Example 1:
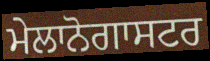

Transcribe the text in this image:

ਮੇਲਾਨੋਗਾਸਟਰ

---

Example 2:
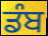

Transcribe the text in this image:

ਡੰਬ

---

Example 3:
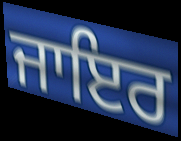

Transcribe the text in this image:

ਜਾਇਰ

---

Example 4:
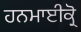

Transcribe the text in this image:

ਹਨਮਾਈਕ੍ਰੋ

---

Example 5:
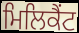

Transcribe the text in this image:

ਮਿਲਿਕੈਂਟ